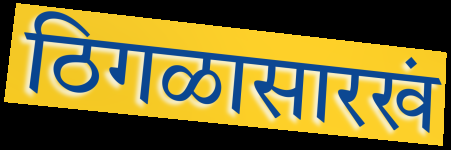
ठिगळासारखं